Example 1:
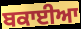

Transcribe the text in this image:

ਬਕਾਈਆ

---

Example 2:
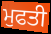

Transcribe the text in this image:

ਮੁਫਤੀ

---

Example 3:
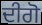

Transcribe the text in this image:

ਦੀਗੋ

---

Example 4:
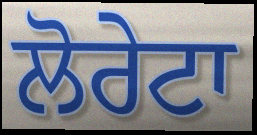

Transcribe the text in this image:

ਲੋਰੇਟਾ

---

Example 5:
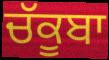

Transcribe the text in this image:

ਚੱਕੂਬਾ